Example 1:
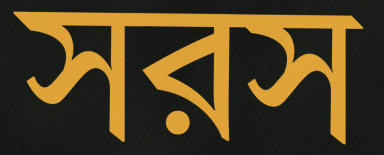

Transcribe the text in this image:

সরস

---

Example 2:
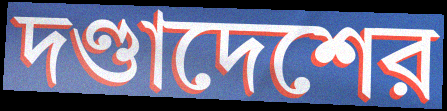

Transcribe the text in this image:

দণ্ডাদেশের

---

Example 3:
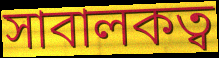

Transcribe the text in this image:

সাবালকত্ব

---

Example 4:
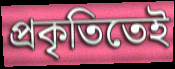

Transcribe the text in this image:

প্রকৃতিতেই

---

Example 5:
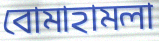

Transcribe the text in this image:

বোমাহামলা